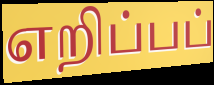
எறிப்பப்